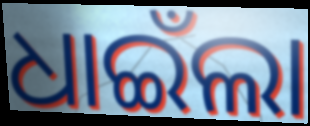
ଧାଇଁଲା